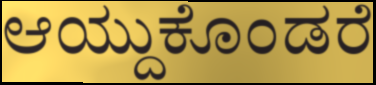
ಆಯ್ದುಕೊಂಡರೆ